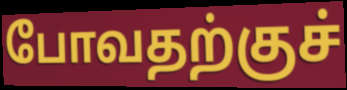
போவதற்குச்